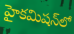
హైకమిషన్‌లో